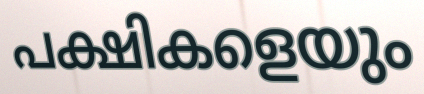
പക്ഷികളെയും